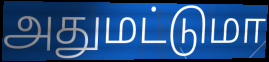
அதுமட்டுமா